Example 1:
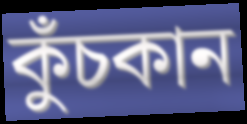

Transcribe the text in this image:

কুঁচকান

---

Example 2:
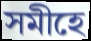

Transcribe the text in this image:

সমীহে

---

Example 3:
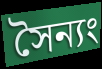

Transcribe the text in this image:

সৈন্যং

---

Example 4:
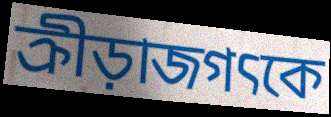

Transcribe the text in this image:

ক্রীড়াজগৎকে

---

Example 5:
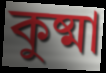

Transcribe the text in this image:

কুষ্মা